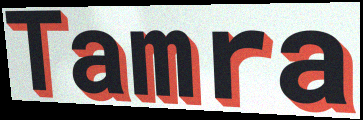
Tamra